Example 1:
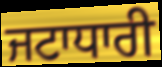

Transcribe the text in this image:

ਜਟਾਧਾਰੀ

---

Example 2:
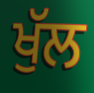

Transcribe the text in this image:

ਖੁੱਲ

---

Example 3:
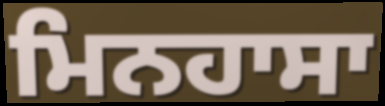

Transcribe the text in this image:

ਮਿਨਹਾਸਾ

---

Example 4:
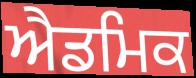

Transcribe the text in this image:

ਐਡਮਿਕ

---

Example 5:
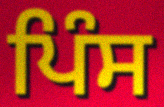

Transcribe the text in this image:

ਪਿੰਸ